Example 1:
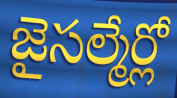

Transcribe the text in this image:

జైసల్మేర్లో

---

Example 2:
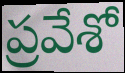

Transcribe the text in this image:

ప్రవేశో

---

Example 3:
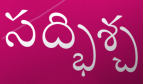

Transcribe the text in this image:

సద్భిశ్చ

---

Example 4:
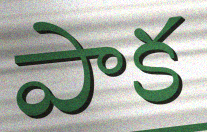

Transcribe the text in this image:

పాక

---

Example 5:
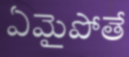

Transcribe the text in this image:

ఏమైపోతే